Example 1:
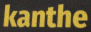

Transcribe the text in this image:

kanthe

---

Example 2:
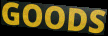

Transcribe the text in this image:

GOODS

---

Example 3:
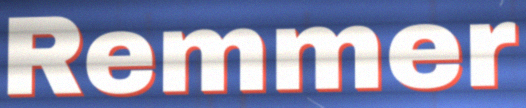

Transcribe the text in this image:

Remmer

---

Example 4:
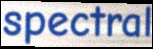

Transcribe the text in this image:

spectral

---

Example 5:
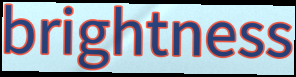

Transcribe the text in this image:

brightness